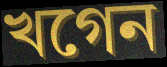
খগেন